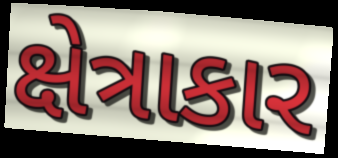
ક્ષેત્રાકાર